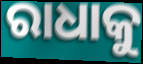
ରାଧାକୁ